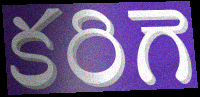
కరిగె